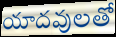
యాదవులతో